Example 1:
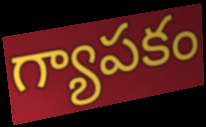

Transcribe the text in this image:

గ్యాపకం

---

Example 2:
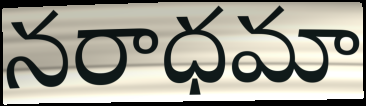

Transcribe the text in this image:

నరాధమా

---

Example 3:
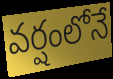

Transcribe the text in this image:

వర్షంలోనే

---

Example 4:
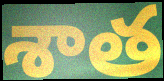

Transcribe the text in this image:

శాత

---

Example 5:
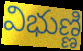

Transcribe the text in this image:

విభుణ్ణి